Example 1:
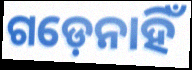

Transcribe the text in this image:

ଗଡ଼େନାହିଁ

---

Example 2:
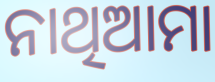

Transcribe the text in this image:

ନାଥିଆମା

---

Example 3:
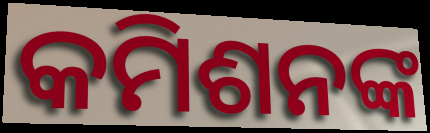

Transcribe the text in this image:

କମିଶନଙ୍କ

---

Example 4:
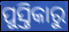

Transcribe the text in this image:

ପୁସ୍ତିକାରୁ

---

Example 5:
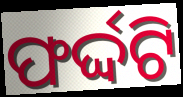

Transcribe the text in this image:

ଫର୍ଦ୍ଦଟି